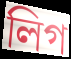
লিগ